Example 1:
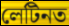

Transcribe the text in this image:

লেটিনত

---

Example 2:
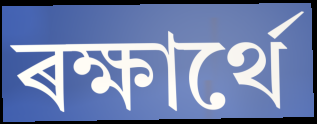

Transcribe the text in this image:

ৰক্ষাৰ্থে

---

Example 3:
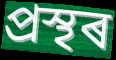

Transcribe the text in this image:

প্ৰস্থৰ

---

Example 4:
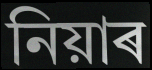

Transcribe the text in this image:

নিয়াৰ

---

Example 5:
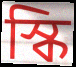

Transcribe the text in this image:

স্কি